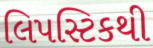
લિપસ્ટિકથી